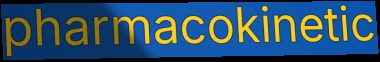
pharmacokinetic